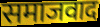
समाजवाद